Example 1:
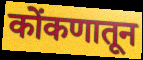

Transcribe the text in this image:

कोंकणातून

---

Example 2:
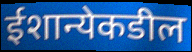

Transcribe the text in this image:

ईशान्येकडील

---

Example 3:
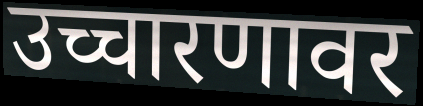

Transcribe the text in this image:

उच्चारणावर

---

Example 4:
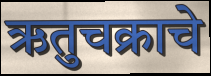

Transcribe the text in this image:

ऋतुचक्राचे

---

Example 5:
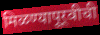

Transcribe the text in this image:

मिळण्यापूर्वीची